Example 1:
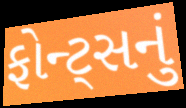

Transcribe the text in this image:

ફોન્ટ્સનું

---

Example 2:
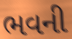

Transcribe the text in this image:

ભવની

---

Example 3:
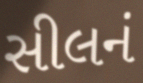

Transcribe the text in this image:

સીલનં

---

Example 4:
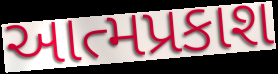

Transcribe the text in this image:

આત્મપ્રકાશ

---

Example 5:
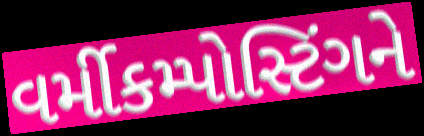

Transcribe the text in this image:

વર્મીકમ્પોસ્ટિંગને